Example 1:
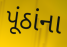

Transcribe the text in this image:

પૂંઠાંના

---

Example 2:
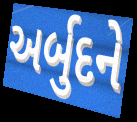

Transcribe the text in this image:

અર્બુદને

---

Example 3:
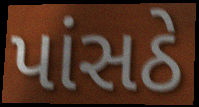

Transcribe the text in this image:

પાંસઠે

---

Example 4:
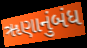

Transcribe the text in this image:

ૠણાનુંબંધ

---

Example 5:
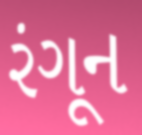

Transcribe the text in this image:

રંગૂન